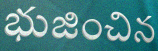
భుజించిన